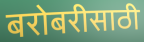
बरोबरीसाठी